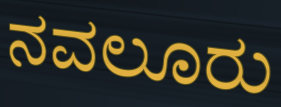
ನವಲೂರು